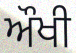
ਔਖੀ